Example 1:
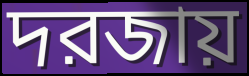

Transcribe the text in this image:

দরজায়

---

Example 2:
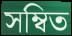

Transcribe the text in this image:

সম্বিত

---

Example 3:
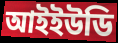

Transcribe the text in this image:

আইইউডি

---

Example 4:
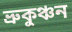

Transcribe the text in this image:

ভ্রুকুঞ্চন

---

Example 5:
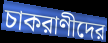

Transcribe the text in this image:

চাকরাণীদের